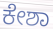
ಕೇಶಾ